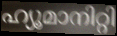
ഹ്യൂമാനിറ്റി